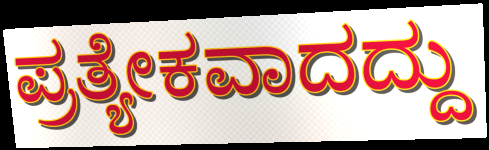
ಪ್ರತ್ಯೇಕವಾದದ್ದು